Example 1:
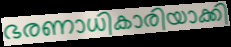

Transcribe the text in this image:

ഭരണാധികാരിയാക്കി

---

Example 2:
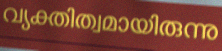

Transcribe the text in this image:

വ്യക്തിത്വമായിരുന്നു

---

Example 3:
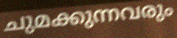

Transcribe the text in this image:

ചുമക്കുന്നവരും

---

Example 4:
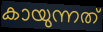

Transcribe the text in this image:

കായുന്നത്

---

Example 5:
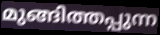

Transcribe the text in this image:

മുങ്ങിത്തപ്പുന്ന